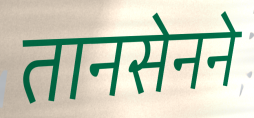
तानसेनने